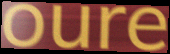
oure